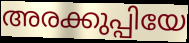
അരക്കുപ്പിയേ